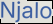
Njalo